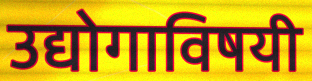
उद्योगाविषयी